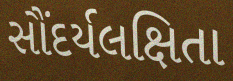
સૌંદર્યલક્ષિતા